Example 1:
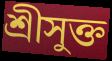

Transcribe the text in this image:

শ্রীসুক্ত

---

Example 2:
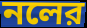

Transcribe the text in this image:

নলের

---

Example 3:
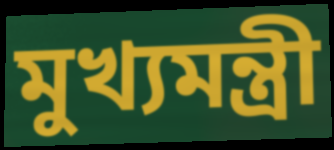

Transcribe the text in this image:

মুখ্যমন্ত্রী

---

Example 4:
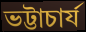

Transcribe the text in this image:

ভট্টাচার্য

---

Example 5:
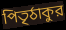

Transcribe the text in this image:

পিতৃঠাকুর